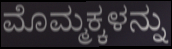
ಮೊಮ್ಮಕ್ಕಳನ್ನು